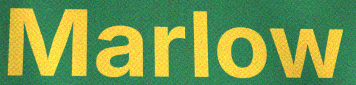
Marlow